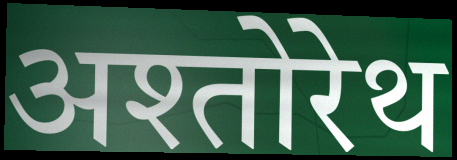
अश्तोरेथ